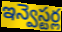
ఇన్వెస్టర్ల